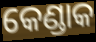
କେଣ୍ଡାକ